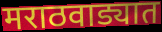
मराठवाड्यात